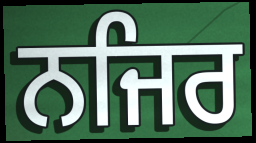
ਨਜਿਰ